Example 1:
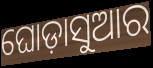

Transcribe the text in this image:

ଘୋଡ଼ାସୁଆର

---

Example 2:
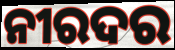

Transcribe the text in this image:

ନୀରଦର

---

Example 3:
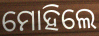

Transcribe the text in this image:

ମୋହିଲେ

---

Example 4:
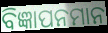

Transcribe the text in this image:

ବିଜ୍ଞାପନମାନ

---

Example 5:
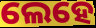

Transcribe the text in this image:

ଲେହେ